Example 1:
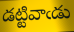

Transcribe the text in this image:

డట్టివాఁడు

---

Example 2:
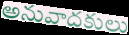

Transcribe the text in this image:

అనువాదకులు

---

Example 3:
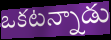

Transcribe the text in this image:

ఒకటన్నాడు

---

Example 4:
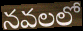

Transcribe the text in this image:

నవలలో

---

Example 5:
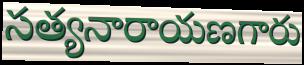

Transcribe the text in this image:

సత్యనారాయణగారు